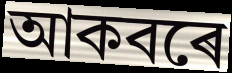
আকবৰে